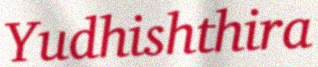
Yudhishthira